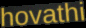
hovathi